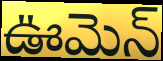
ఊమెన్